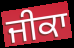
ਜੀਕਾ